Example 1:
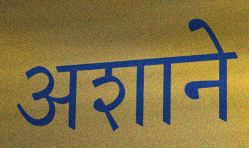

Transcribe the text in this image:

अशाने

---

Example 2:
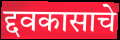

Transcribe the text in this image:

द्दवकासाचे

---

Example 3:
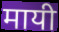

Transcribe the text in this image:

मायी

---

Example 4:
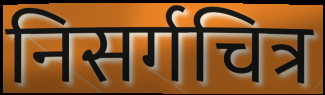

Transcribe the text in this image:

निसर्गचित्र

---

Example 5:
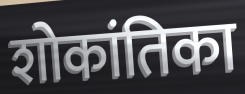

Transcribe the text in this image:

शोकांतिका